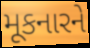
મૂકનારને